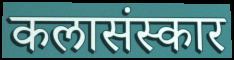
कलासंस्कार